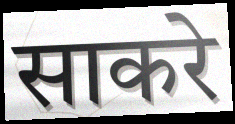
साकरे